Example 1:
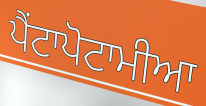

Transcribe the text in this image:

ਪੈਂਟਾਪੋਟਾਮੀਆ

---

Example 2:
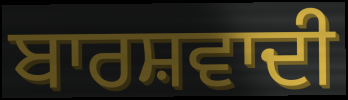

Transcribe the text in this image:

ਬਾਰਸ਼ਵਾਦੀ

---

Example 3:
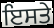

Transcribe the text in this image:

ਇਸਤੇ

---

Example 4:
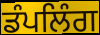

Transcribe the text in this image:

ਡੰਪਲਿੰਗ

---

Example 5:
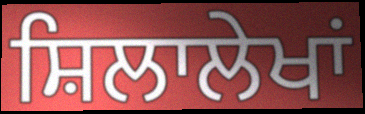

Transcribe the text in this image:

ਸ਼ਿਲਾਲੇਖਾਂ